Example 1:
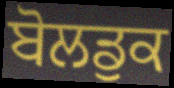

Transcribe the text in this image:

ਬੋਲਡੁਕ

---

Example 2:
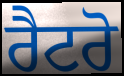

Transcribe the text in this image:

ਰੈਟਰੋ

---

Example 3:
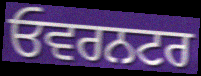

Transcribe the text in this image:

ਓਵਰਨਟਰ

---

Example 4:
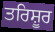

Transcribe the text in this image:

ਤਰਿਸ਼ੂਰ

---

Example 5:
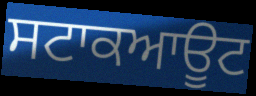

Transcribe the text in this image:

ਸਟਾਕਆਊਟ